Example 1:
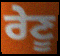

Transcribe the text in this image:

ਰੇਣੂ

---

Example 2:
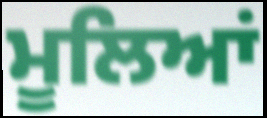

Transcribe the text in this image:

ਮੂਲਿਆਂ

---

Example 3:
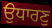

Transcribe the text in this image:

ਉਧਾਰਣੁ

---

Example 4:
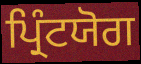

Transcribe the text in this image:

ਪ੍ਰਿੰਟਯੋਗ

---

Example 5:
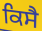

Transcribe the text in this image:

ਕਿਸੈ